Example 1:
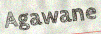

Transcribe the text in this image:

Agawane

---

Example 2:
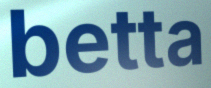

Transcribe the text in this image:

betta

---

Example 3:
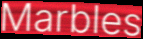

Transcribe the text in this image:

Marbles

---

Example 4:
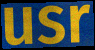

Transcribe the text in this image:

usr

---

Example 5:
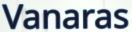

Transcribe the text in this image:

Vanaras